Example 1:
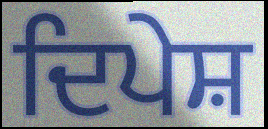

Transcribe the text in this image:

ਦਿਪੇਸ਼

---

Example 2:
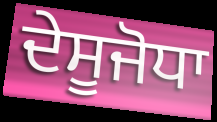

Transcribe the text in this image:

ਦੇਸੂਜੋਧਾ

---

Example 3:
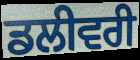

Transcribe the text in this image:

ਡਲੀਵਰੀ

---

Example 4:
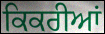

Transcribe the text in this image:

ਕਿਕਰੀਆਂ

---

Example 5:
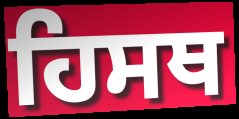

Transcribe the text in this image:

ਹਿਸਥ